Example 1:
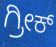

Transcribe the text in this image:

ಗ್ರೀಕ್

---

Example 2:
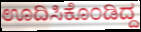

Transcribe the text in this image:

ಊದಿಸಿಕೊಂಡಿದ್ದ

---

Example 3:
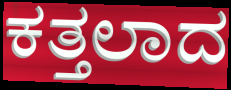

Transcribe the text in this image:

ಕತ್ತಲಾದ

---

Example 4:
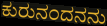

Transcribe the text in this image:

ಕುರುನಂದನನು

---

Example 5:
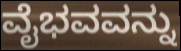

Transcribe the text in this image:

ವೈಭವವನ್ನು